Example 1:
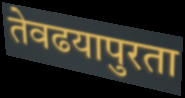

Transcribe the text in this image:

तेवढयापुरता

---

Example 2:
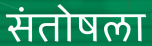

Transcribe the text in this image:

संतोषला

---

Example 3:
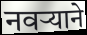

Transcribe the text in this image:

नवर्‍याने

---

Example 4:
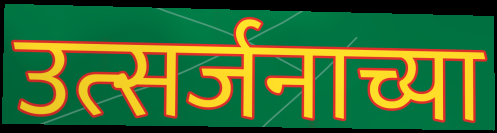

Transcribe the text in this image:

उत्सर्जनाच्या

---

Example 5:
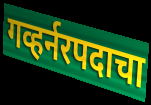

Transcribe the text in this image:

गव्हर्नरपदाचा